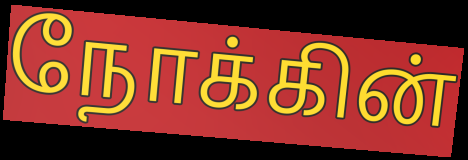
நோக்கின்